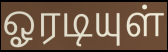
ஓரடியுள்